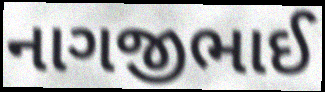
નાગજીભાઈ